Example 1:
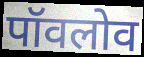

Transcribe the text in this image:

पॉवलोव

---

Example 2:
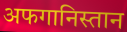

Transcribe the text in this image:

अफगानिस्तान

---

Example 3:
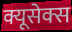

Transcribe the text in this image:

क्यूसेक्स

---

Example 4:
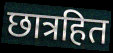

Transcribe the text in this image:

छात्रहित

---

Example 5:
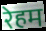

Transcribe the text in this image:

रेहम